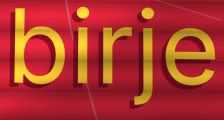
birje